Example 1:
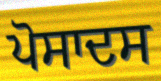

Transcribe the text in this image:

ਪੋਸਾਦਸ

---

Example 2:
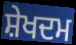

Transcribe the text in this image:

ਸ਼ੇਖਦਮ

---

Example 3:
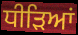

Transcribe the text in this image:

ਧੀੜਿਆਂ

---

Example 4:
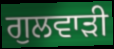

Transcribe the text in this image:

ਗੁਲਵਾੜੀ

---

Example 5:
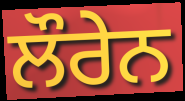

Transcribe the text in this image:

ਲੌਰੇਨ